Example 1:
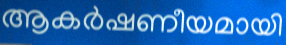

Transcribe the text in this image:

ആകർഷണീയമായി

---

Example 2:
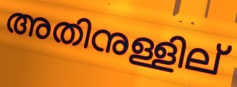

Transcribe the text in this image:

അതിനുള്ളില്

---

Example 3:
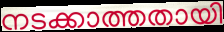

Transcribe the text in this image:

നടക്കാത്തതായി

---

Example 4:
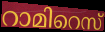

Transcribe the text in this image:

റാമിറെസ്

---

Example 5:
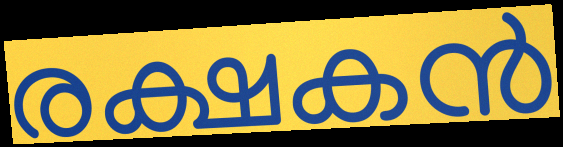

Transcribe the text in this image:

രക്ഷകൻ